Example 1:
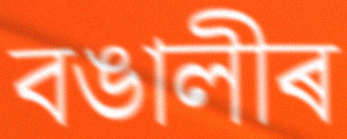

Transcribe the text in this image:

বঙালীৰ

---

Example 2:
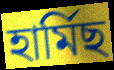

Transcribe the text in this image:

হাৰ্মিছ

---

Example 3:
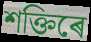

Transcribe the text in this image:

শক্তিৰে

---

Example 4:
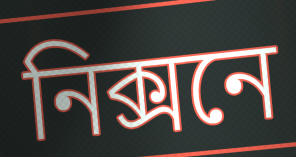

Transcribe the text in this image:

নিক্সনে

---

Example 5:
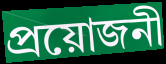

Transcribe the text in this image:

প্ৰয়োজনী